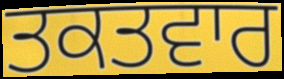
ਤਕਤਵਾਰ